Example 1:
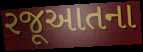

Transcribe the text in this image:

રજૂઆતના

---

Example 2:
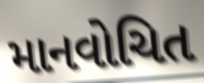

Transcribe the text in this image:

માનવોચિત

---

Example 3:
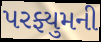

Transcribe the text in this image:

પરફ્યુમની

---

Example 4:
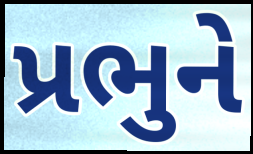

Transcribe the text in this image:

પ્રભુને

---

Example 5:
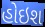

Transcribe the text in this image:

હોઇશ